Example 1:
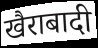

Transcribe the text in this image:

खैराबादी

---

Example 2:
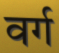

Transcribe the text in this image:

वर्ग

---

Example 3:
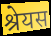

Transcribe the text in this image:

श्रेयस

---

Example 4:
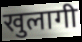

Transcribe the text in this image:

खुलागी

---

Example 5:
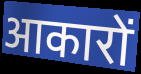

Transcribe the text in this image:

आकारों